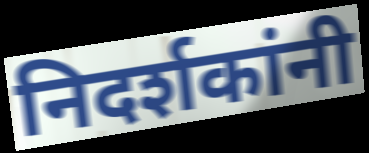
निदर्शकांनी